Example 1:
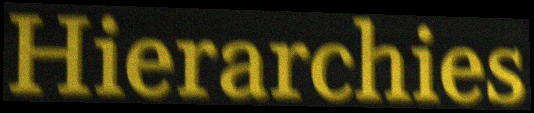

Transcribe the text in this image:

Hierarchies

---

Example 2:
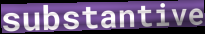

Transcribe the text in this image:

substantive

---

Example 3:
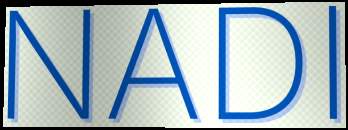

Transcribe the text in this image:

NADI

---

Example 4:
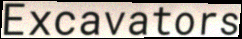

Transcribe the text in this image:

Excavators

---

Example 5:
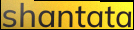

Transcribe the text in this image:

shantata